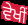
ਵੇਖੀਂ